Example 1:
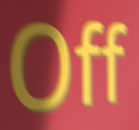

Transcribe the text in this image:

Off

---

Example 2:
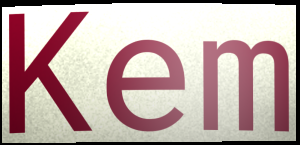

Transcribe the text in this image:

Kem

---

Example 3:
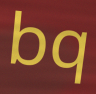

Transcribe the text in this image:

bq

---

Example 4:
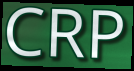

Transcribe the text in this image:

CRP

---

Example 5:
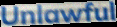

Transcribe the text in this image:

Unlawful